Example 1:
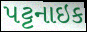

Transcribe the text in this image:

પટ્ટનાઇક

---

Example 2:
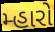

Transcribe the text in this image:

મ્હારો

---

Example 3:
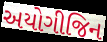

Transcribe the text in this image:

અયોગીજિન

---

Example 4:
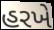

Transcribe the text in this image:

હરખે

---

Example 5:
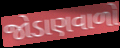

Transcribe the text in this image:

જોડાણવાળો